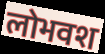
लोभवश